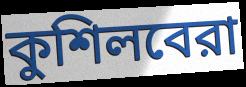
কুশিলবেরা